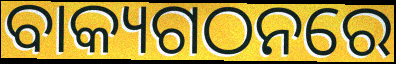
ବାକ୍ୟଗଠନରେ